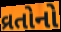
વ્રતોનો